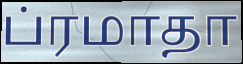
ப்ரமாதா